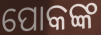
ପୋକଙ୍କ